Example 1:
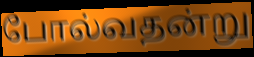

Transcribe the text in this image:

போல்வதன்று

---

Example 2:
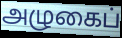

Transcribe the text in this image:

அழுகைப்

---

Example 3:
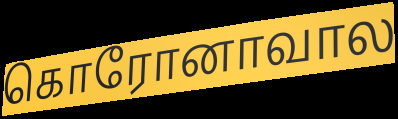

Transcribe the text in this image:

கொரோனாவால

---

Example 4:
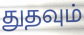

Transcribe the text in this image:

துதவும்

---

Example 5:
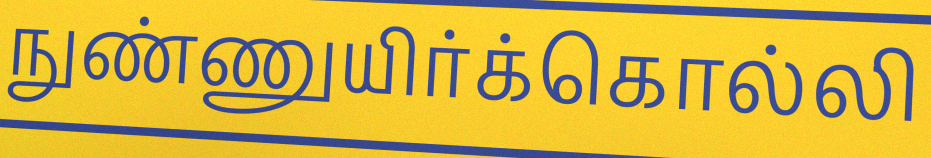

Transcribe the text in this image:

நுண்ணுயிர்க்கொல்லி